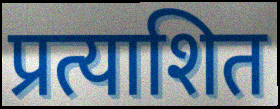
प्रत्याशित